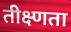
तीक्ष्णता